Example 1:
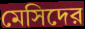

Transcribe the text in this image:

মেসিদের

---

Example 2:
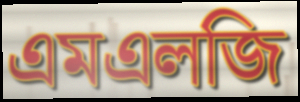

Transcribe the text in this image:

এমএলজি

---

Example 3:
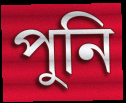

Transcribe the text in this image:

পুনি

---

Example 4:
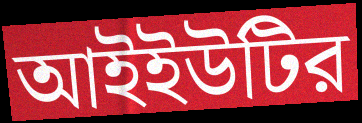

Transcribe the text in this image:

আইইউটির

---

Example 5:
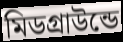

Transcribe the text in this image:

মিডগ্রাউন্ডে